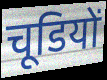
चूडियों